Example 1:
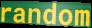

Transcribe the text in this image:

random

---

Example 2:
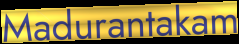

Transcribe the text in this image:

Madurantakam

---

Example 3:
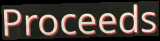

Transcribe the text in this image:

Proceeds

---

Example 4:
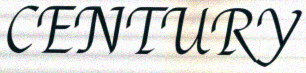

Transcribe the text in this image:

CENTURY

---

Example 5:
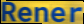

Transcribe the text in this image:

Rener